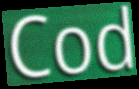
Cod